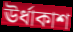
ঊর্ধাকাশ